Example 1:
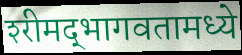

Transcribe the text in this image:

श्रीमद्‌भागवतामध्ये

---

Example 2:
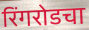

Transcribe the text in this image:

रिंगरोडचा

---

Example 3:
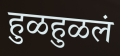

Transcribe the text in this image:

हुळहुळलं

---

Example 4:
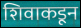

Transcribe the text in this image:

शिवाकडून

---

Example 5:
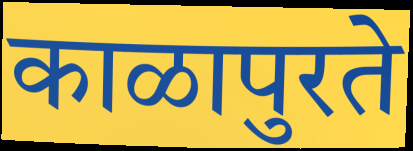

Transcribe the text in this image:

काळापुरते